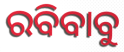
ରବିବାବୁ